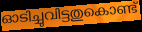
ഓടിച്ചുവിട്ടതുകൊണ്ട്